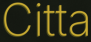
Citta